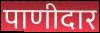
पाणीदार